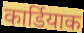
कार्डियाक